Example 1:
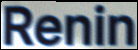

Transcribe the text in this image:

Renin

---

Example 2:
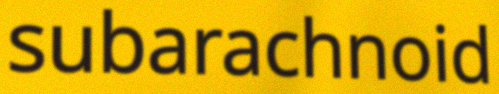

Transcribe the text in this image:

subarachnoid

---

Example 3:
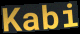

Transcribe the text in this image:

Kabi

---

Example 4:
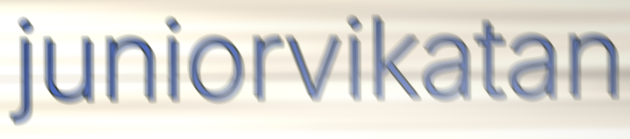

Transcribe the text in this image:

juniorvikatan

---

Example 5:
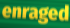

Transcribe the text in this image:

enraged